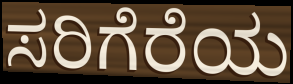
ಸರಿಗೆರೆಯ